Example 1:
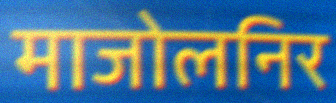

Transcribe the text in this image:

माजोलनिर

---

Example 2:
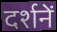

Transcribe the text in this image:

दर्शनें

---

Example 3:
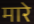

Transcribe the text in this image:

मारे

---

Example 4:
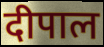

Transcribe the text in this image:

दीपाल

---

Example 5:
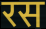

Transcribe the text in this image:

रस